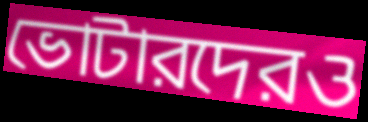
ভোটারদেরও